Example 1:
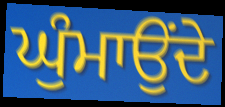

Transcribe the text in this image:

ਘੁੰਮਾਉਂਦੇ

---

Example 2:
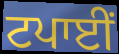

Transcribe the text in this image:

ਟਪਾਈਂ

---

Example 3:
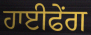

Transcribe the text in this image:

ਹਾਈਫੇਂਗ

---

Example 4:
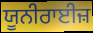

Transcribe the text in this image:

ਯੂਨੀਰਾਈਜ਼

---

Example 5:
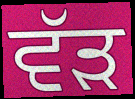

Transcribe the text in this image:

ਵੱੜ